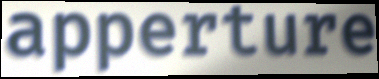
apperture